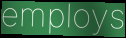
employs